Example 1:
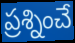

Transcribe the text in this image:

ప్రశ్నించే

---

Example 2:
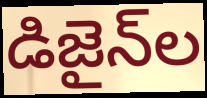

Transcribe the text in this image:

డిజైన్‌ల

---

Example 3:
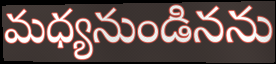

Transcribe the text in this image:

మధ్యనుండినను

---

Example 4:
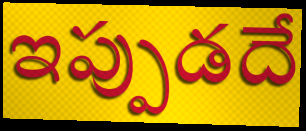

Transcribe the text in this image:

ఇప్పుడదే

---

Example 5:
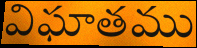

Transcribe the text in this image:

విఘాతము